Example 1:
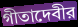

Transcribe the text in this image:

গীতাদেবীর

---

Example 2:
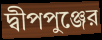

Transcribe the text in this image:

দ্বীপপুঞ্জের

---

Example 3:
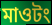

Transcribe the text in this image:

মাওটং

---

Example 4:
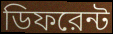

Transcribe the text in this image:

ডিফরেন্ট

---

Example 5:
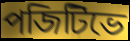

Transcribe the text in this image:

পজিটিভে